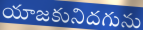
యాజకునిదగును